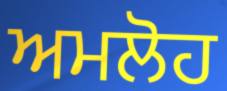
ਅਮਲੋਹ